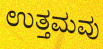
ಉತ್ತಮವು